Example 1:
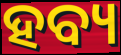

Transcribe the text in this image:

ହବ୍ୟ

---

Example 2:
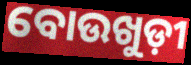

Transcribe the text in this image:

ବୋଉଖୁଡ଼ୀ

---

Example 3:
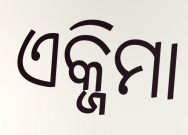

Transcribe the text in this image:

ଏକ୍ଜିମା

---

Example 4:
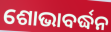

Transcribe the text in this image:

ଶୋଭାବର୍ଦ୍ଧନ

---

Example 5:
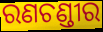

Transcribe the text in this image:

ରଣଚଣ୍ଡୀର